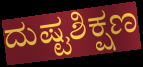
ದುಷ್ಟಶಿಕ್ಷಣ